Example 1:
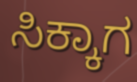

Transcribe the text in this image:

ಸಿಕ್ಕಾಗ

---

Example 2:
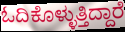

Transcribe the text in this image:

ಓದಿಕೊಳ್ಳುತ್ತಿದ್ದಾರೆ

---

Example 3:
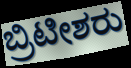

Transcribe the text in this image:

ಬ್ರಿಟೀಶರು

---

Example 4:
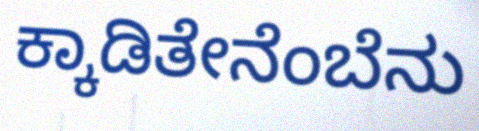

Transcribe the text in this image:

ಕ್ಕಾಡಿತೇನೆಂಬೆನು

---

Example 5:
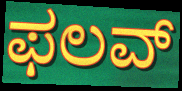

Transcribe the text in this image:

ಫಲವ್